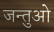
जन्तुओ